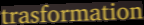
trasformation